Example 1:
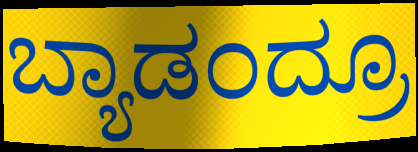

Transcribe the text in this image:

ಬ್ಯಾಡಂದ್ರೂ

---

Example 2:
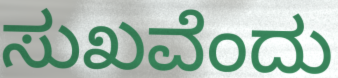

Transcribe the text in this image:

ಸುಖವೆಂದು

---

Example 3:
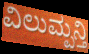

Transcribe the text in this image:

ವಿಲುಮ್ಪನ್ತಿ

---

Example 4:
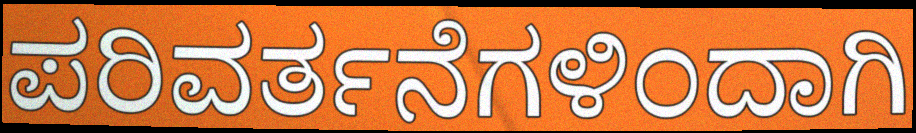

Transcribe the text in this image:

ಪರಿವರ್ತನೆಗಳಿಂದಾಗಿ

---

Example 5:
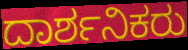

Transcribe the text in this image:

ದಾರ್ಶನಿಕರು